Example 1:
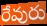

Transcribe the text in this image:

రేవురు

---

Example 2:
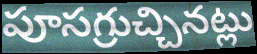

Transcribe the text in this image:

పూసగ్రుచ్చినట్లు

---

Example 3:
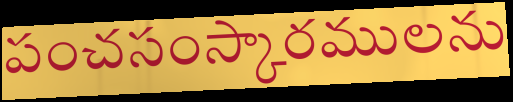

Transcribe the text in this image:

పంచసంస్కారములను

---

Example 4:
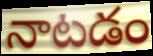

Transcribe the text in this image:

నాటడం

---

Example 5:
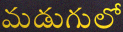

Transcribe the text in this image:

మడుగులో